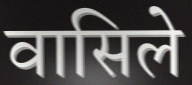
वासिले